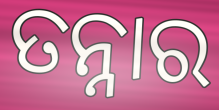
ତନ୍ନାର